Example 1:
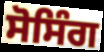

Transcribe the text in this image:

ਸੋਸਿੰਗ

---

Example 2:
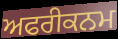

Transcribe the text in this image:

ਅਫਰੀਕਨਮ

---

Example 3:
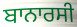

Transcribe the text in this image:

ਬਾਨਾਰਸੀ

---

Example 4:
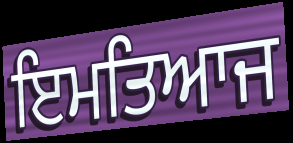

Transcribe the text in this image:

ਇਮਤਿਆਜ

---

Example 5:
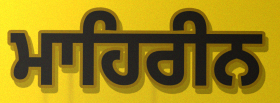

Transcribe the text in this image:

ਮਾਹਿਰੀਨ